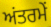
ਅਂਤਰਮੇਂ